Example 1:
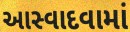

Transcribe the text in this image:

આસ્વાદવામાં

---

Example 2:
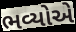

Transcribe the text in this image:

ભવ્યોએ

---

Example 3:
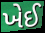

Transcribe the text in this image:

ખેઈ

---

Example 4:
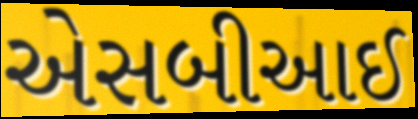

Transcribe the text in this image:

એસબીઆઈ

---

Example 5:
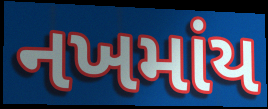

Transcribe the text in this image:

નખમાંય